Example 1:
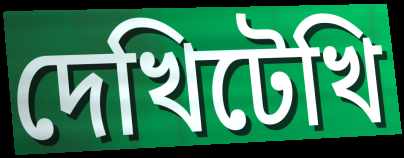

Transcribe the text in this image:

দেখিটেখি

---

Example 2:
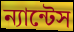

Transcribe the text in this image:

ন্যান্টেস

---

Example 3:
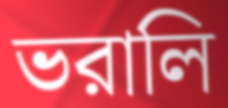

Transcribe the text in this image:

ভরালি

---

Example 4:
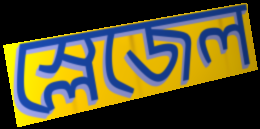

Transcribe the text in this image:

স্লেজেল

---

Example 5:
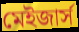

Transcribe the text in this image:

মেইজার্স